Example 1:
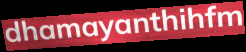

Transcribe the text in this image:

dhamayanthihfm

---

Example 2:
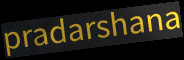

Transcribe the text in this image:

pradarshana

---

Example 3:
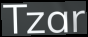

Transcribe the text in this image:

Tzar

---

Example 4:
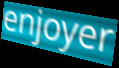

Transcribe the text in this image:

enjoyer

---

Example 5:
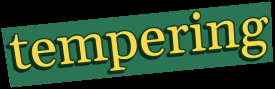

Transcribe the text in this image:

tempering